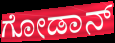
ಗೋಡಾನ್